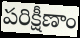
పరిక్షీణాం